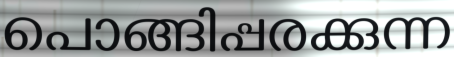
പൊങ്ങിപ്പരക്കുന്ന